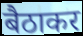
बैठाकर